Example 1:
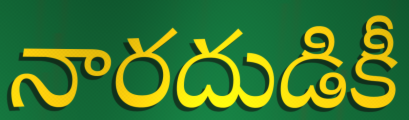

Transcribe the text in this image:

నారదుడికీ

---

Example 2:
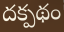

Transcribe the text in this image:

దక్పథం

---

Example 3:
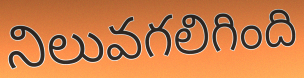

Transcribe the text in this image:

నిలువగలిగింది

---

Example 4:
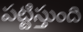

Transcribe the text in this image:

పట్టిస్తుంది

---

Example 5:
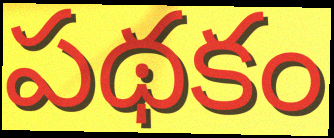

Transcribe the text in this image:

పథకం